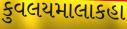
કુવલયમાલાકહા